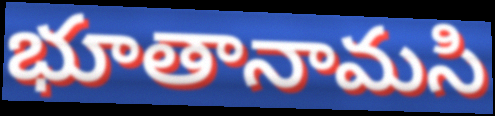
భూతానామసి